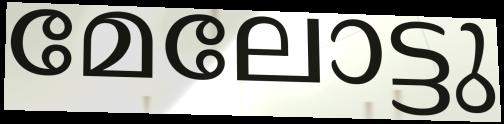
മേലോട്ടു